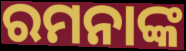
ରମନାଙ୍କ